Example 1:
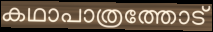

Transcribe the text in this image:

കഥാപാത്രത്തോട്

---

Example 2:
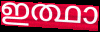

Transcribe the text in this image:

ഇത്ഥാ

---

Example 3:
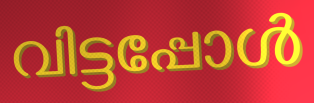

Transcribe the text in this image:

വിട്ടപ്പോൾ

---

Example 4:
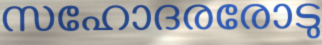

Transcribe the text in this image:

സഹോദരരോടു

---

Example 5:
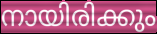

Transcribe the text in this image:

നായിരിക്കും